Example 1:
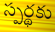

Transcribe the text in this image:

స్పర్థకు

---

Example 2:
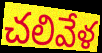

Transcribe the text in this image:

చలివేళ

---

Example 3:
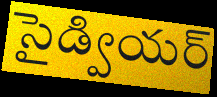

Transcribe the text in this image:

సైడ్వియర్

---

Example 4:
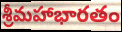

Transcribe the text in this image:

శ్రీమహాభారతం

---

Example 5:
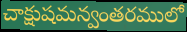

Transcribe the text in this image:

చాక్షుషమన్వంతరములో